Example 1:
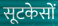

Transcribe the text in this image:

सूटकेसों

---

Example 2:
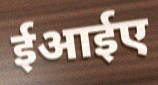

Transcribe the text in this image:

ईआईए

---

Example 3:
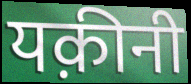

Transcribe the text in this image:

यक़ीनी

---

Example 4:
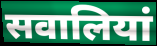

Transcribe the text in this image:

सवालियां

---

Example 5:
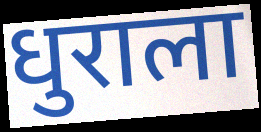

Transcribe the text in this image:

धुराला